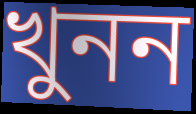
খুনন